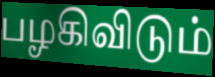
பழகிவிடும்